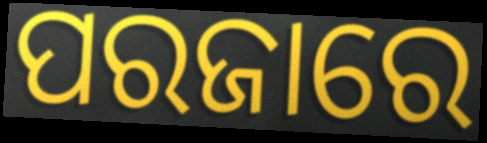
ପରଜାରେ